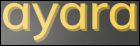
ayara